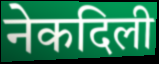
नेकदिली